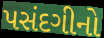
પસંદગીનો